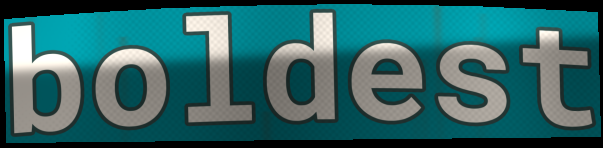
boldest